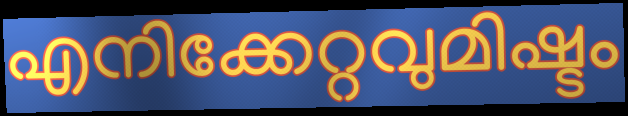
എനിക്കേറ്റവുമിഷ്ടം